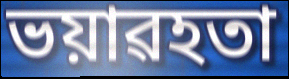
ভয়াৱহতা